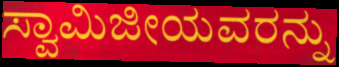
ಸ್ವಾಮಿಜೀಯವರನ್ನು